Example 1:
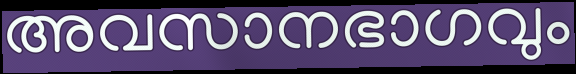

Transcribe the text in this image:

അവസാനഭാഗവും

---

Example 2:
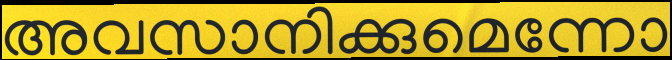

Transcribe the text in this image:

അവസാനിക്കുമെന്നോ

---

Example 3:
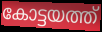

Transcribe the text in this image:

കോട്ടയത്ത്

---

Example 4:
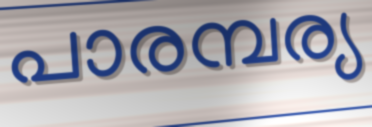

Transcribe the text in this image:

പാരമ്പര്യ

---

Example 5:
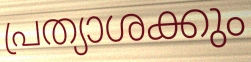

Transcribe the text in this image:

പ്രത്യാശക്കും